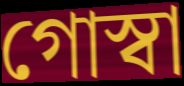
গোস্বা